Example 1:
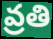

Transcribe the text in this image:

వ్రతి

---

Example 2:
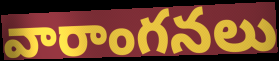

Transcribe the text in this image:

వారాంగనలు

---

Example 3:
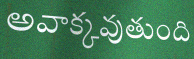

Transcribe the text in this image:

అవాక్కవుతుంది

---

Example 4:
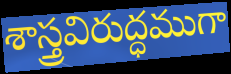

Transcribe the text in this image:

శాస్త్రవిరుద్ధముగా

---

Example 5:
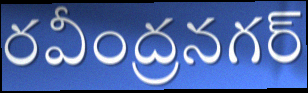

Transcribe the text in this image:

రవీంద్రనగర్